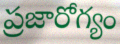
ప్రజారోగ్యం